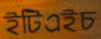
ইটিএইচ